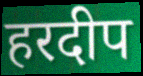
हरदीप